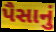
પૈસાનું